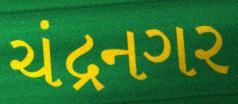
ચંદ્રનગર